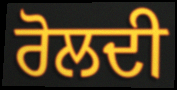
ਰੋਲਦੀ